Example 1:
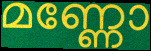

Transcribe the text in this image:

മണ്ണോ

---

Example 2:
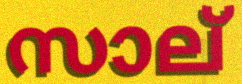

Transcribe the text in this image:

സാല്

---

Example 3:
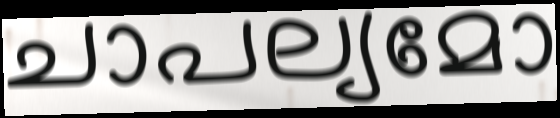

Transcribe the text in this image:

ചാപല്യമോ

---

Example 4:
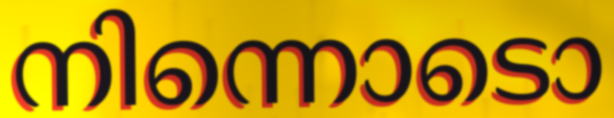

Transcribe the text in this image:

നിന്നൊടൊ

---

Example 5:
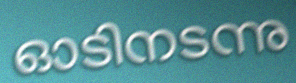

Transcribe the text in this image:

ഓടിനടന്നു